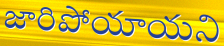
జారిపోయాయని